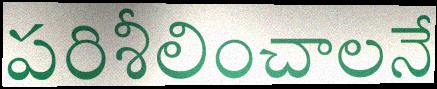
పరిశీలించాలనే